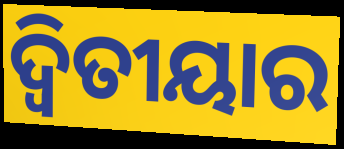
ଦ୍ଵିତୀୟାର